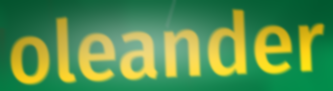
oleander